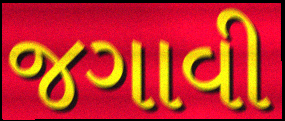
જગાવી